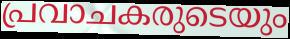
പ്രവാചകരുടെയും